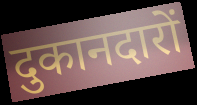
दुकानदारों